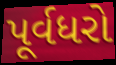
પૂર્વધરો